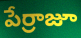
పేర్రాజూ